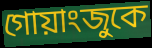
গোয়াংজুকে